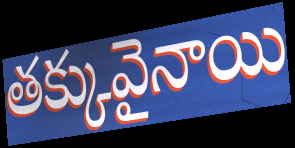
తక్కువైనాయి